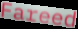
Fareed